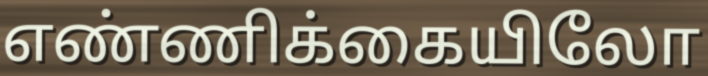
எண்ணிக்கையிலோ